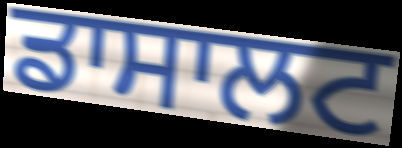
ਡਾਸਾਲਟ